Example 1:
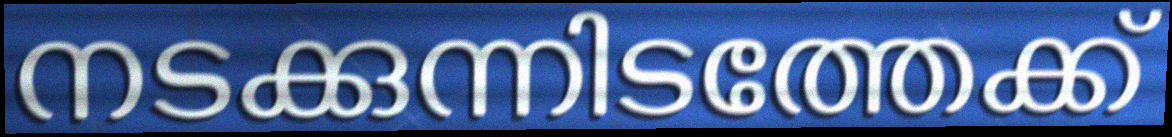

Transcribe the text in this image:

നടക്കുന്നിടത്തേക്ക്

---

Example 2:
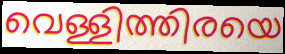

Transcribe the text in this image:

വെള്ളിത്തിരയെ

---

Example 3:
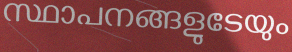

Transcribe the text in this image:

സ്ഥാപനങ്ങളുടേയും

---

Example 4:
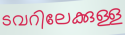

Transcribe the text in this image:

ടവറിലേക്കുള്ള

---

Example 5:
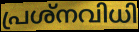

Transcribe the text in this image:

പ്രശ്നവിധി